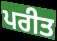
ਪਰੀਤ